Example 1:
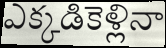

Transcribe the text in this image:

ఎక్కడికెళ్లినా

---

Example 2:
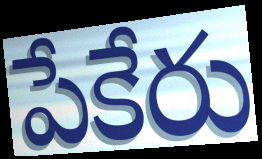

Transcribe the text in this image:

పేకేరు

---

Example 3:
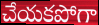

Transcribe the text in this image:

చేయకపోగా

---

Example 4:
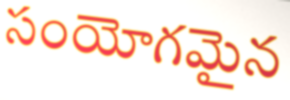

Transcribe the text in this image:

సంయోగమైన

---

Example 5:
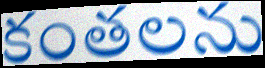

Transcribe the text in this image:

కంతలను